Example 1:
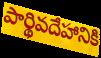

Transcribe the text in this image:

పార్థివదేహానికి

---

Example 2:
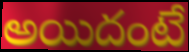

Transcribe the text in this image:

అయిదంటే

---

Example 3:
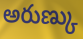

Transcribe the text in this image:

అరుణ్కు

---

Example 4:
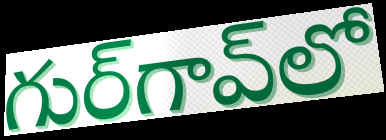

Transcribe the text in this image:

గుర్‌గావ్‌లో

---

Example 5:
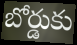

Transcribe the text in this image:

బోర్డుకు